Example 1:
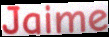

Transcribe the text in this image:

Jaime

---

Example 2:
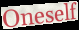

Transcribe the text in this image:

Oneself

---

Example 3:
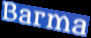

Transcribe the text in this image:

Barma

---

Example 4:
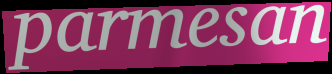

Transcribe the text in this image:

parmesan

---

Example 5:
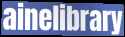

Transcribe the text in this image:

ainelibrary